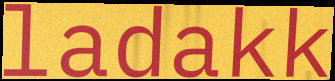
ladakk